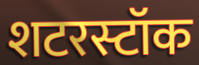
शटरस्‍टॉक